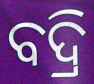
ବଦ୍ରି